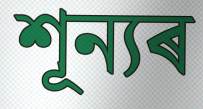
শূন্যৰ